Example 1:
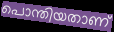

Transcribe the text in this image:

പൊന്തിയതാണ്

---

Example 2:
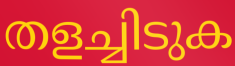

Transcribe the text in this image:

തളച്ചിടുക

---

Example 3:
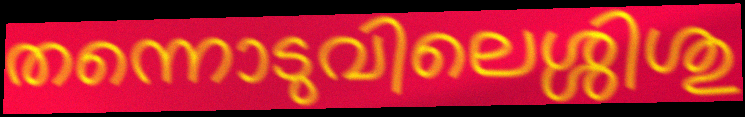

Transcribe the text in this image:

തന്നൊടുവിലെശ്ശിശു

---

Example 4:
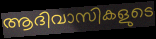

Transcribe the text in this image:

ആദിവാസികളുടെ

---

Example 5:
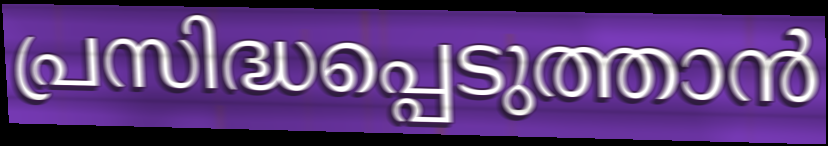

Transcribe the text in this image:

പ്രസിദ്ധപ്പെടുത്താൻ